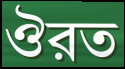
ঔরত